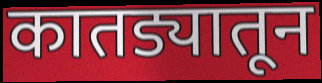
कातड्यातून